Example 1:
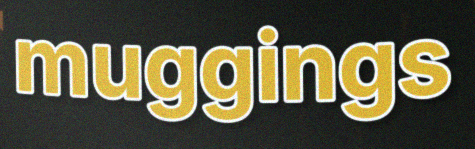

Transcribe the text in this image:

muggings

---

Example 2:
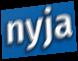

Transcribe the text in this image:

nyja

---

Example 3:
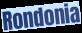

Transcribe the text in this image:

Rondonia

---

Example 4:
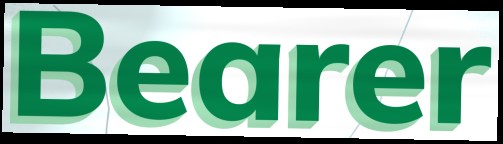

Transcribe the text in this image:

Bearer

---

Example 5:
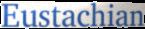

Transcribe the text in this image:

Eustachian